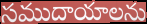
సముదాయాలను